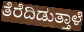
ತೆರೆದಿಡುತ್ತಾಳೆ